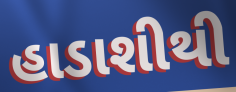
હાડાશીથી